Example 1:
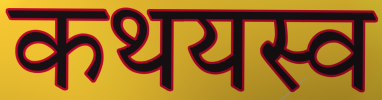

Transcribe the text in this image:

कथयस्व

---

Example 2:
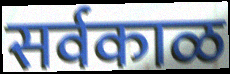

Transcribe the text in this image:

सर्वकाळ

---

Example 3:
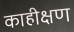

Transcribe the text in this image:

काहीक्षण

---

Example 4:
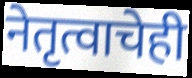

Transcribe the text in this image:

नेतृत्वाचेही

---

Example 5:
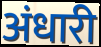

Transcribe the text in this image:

अंधारी